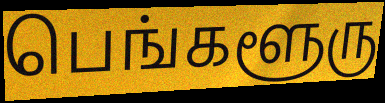
பெங்களூரு